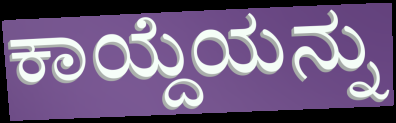
ಕಾಯ್ದೆಯನ್ನು